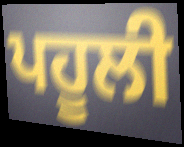
ਪਹੂਲੀ